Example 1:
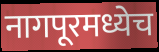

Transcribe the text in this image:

नागपूरमध्येच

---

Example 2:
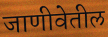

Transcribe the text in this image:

जाणीवेतील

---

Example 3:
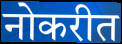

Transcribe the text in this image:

नोकरीत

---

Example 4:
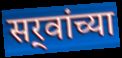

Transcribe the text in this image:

सर्वांच्या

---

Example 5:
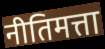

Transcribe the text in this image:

नीतिमत्ता